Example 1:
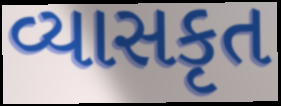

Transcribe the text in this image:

વ્યાસકૃત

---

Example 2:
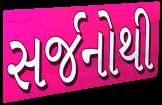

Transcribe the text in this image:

સર્જનોથી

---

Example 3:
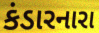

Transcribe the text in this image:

કંડારનારા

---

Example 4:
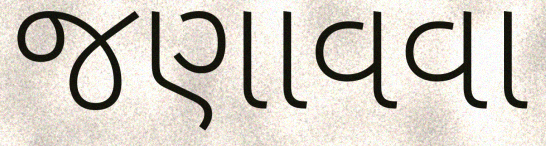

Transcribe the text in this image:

જણાવવા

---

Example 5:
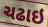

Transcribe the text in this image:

ચઢાઇ